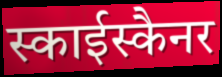
स्काईस्कैनर